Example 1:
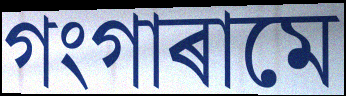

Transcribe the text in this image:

গংগাৰামে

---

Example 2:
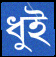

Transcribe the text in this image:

ধুই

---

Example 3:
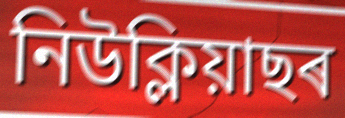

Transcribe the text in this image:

নিউক্লিয়াছৰ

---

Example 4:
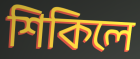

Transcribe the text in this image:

শিকিলে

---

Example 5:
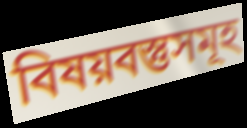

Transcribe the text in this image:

বিষয়বস্তুসমূহ